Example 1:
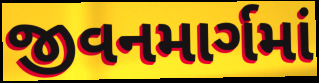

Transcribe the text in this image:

જીવનમાર્ગમાં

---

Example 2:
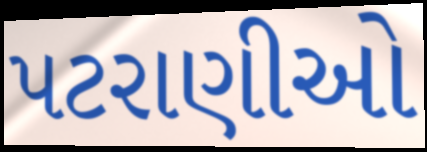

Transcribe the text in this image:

પટરાણીઓ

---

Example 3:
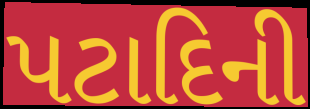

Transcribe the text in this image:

પટાદિની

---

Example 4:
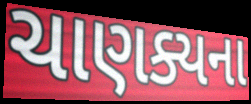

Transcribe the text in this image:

ચાણક્યના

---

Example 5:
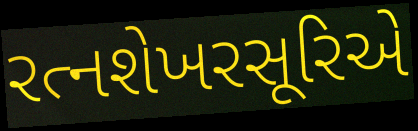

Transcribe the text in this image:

રત્નશેખરસૂરિએ